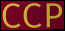
CCP